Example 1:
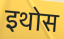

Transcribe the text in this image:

इथोस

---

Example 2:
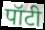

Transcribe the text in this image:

पॉटी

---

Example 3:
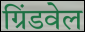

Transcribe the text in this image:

ग्रिंडवेल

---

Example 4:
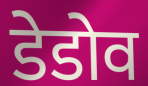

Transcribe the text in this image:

डेडोव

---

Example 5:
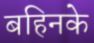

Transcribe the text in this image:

बहिनके